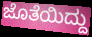
ಜೊತೆಯಿದ್ದು